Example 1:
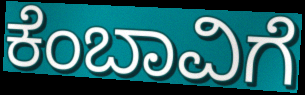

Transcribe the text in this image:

ಕೆಂಬಾವಿಗೆ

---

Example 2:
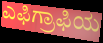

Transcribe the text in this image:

ಎಫಿಗ್ರಾಫಿಯ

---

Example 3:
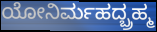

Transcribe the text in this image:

ಯೋನಿರ್ಮಹದ್ಬ್ರಹ್ಮ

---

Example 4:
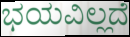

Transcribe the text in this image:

ಭಯವಿಲ್ಲದೆ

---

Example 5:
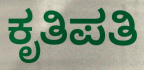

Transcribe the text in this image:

ಕೃತಿಪತಿ